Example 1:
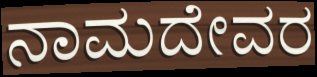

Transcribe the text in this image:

ನಾಮದೇವರ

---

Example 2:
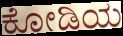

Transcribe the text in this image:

ಕೋಡಿಯ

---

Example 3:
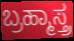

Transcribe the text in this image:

ಬ್ರಹ್ಮಾಸ್ತ್ರ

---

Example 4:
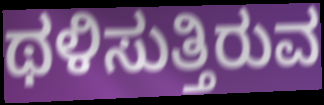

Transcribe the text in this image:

ಥಳಿಸುತ್ತಿರುವ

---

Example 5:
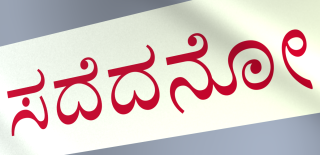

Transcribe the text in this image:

ಸದೆದನೋ